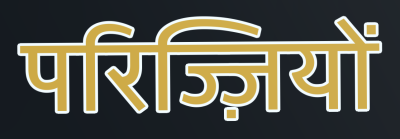
परिज्ज़ियों